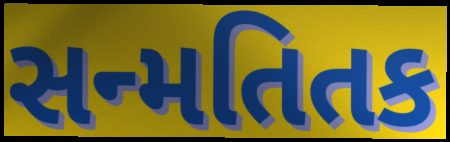
સન્મતિતક